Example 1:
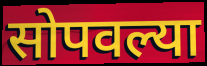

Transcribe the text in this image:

सोपवल्या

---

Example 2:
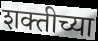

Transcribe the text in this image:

शक्तीच्या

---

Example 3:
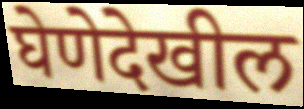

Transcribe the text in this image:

घेणेदेखील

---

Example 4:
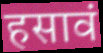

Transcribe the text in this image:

हसावं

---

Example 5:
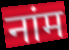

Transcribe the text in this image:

नांम